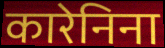
कारेनिना